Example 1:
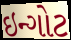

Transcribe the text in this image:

ઇન્ગોટ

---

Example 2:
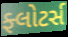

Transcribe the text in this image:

ફ્લોટર્સ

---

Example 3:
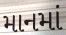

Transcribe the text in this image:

માનમાં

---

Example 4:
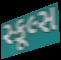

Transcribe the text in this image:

સ્કૂલ્સ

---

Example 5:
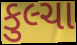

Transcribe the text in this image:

કુલ્ચા